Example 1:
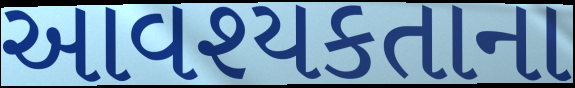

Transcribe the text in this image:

આવશ્યકતાના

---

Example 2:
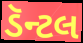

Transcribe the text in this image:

ડૅન્ટલ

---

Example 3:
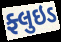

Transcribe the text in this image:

ફ્લુઇડ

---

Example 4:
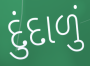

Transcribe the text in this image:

દુંદાળું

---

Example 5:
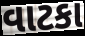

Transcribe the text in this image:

વાટકા